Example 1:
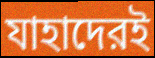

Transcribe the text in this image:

যাহাদেরই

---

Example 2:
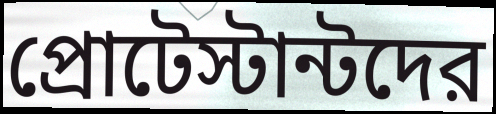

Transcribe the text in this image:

প্রোটেস্টান্টদের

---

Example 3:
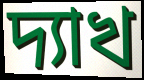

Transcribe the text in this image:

দ্যাখ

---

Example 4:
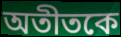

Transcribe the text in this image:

অতীতকে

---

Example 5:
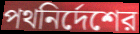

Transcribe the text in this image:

পথনির্দেশের